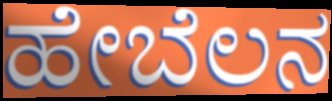
ಹೇಬೆಲನ